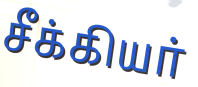
சீக்கியர்